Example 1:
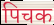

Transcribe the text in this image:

पिचक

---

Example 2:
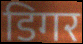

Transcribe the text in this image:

डिगर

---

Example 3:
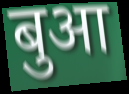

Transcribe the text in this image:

बुआ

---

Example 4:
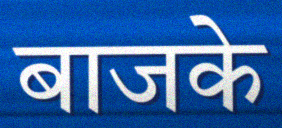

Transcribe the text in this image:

बाजके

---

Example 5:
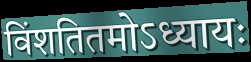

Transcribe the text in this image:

विंशतितमोऽध्यायः